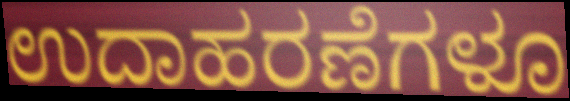
ಉದಾಹರಣೆಗಳೂ